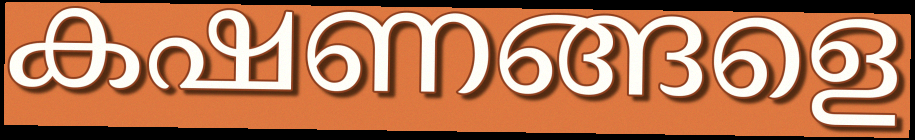
കഷണങ്ങളെ